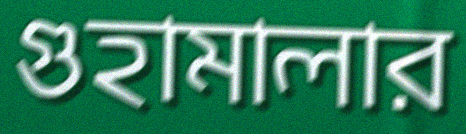
গুহামালার